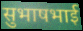
सुभाषभाई